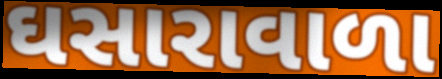
ઘસારાવાળા